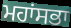
ਮਹਾਂਸਭਾ